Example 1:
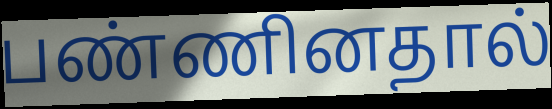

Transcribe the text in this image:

பண்ணினதால்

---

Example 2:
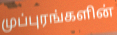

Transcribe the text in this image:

முப்புரங்களின்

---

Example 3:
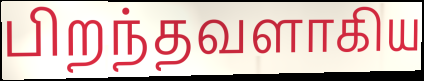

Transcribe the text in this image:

பிறந்தவளாகிய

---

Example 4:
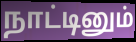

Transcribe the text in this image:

நாட்டினும்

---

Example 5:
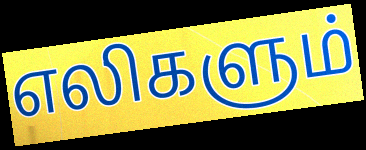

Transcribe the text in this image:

எலிகளும்